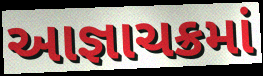
આજ્ઞાચક્રમાં